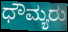
ಧೌಮ್ಯರು